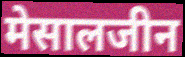
मेसालजीन